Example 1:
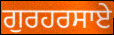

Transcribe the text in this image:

ਗੁਰਹਰਸਾਏ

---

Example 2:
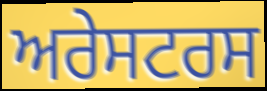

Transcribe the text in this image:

ਅਰੇਸਟਰਸ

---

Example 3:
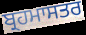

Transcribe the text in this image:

ਬ੍ਰਹਮਾਸਤਰ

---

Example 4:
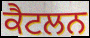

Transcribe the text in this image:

ਕੈਟਲਨ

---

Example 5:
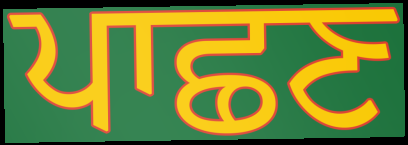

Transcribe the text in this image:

ਪਾਛਣ